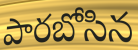
పారబోసిన